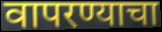
वापरण्याचा